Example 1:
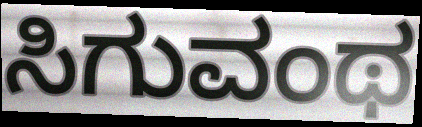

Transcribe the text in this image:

ಸಿಗುವಂಥ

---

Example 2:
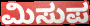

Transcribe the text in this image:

ಮಿಸುಪ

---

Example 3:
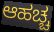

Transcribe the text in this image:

ಆಹಚ್ಚ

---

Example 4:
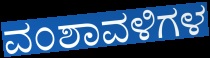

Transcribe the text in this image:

ವಂಶಾವಳಿಗಳ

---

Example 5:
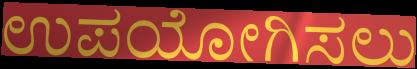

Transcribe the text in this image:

ಉಪಯೋಗಿಸಲು